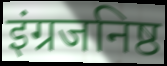
इंग्रजनिष्ठ